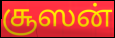
சூஸன்